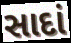
સાદાં